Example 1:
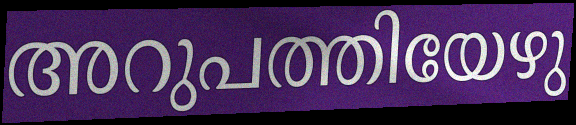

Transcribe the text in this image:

അറുപത്തിയേഴു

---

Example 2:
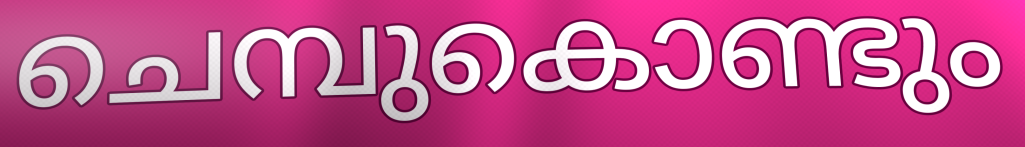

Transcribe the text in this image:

ചെമ്പുകൊണ്ടും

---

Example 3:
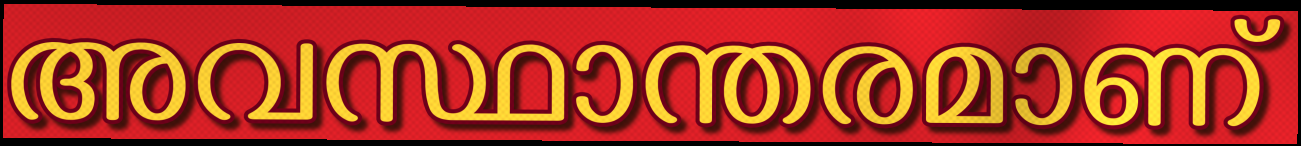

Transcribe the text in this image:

അവസ്ഥാന്തരമാണ്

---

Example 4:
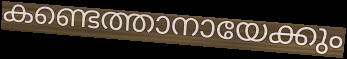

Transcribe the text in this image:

കണ്ടെത്താനായേക്കും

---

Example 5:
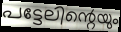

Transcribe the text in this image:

പട്ടേലിന്റെയും